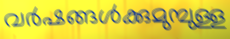
വർഷങ്ങൾക്കുമുമ്പുള്ള